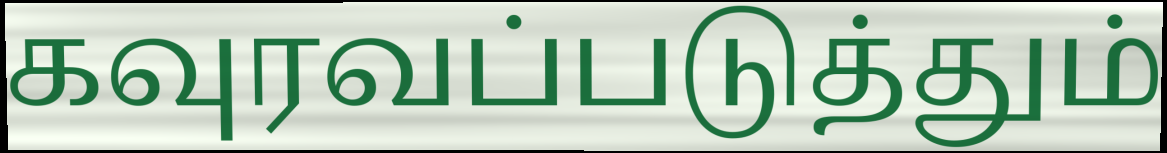
கவுரவப்படுத்தும்